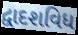
દ્વાદશવિધ